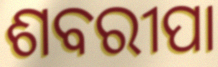
ଶବରୀପା